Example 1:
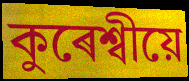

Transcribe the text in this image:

কুৰেশ্বীয়ে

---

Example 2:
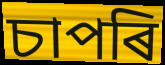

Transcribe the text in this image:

চাপৰি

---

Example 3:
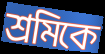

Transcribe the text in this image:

শ্ৰমিকে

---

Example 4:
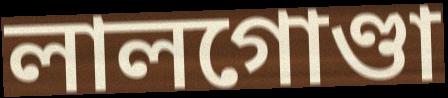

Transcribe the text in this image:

লালগোণ্ডা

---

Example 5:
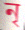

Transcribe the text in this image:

নৃ